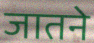
जातने